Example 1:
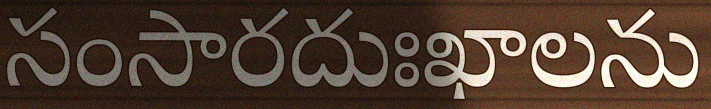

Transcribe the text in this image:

సంసారదుఃఖాలను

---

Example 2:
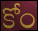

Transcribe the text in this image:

కోం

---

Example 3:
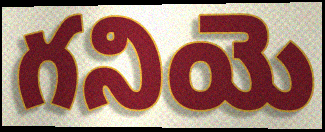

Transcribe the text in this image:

గనియె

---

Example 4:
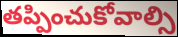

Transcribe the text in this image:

తప్పించుకోవాల్సి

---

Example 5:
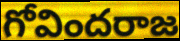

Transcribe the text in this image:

గోవిందరాజ